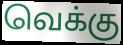
வெக்கு